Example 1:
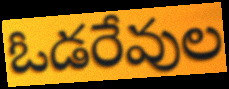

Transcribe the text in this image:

ఓడరేవుల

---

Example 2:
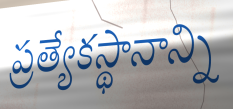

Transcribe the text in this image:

ప్రత్యేకస్థానాన్ని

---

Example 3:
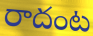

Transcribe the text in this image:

రాదంట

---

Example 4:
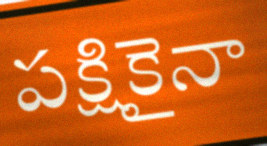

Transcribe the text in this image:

పక్షికైనా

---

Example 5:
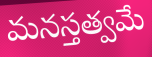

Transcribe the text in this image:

మనస్తత్వమే